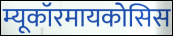
म्यूकॉरमायकोसिस